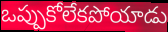
ఒప్పుకోలేకపోయాడు